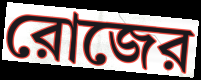
রোজের